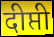
दीप्ती